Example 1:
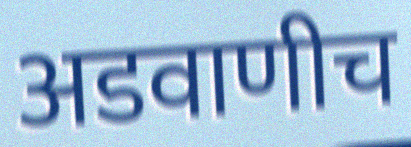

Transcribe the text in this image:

अडवाणीच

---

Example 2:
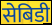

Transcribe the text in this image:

सेबिडी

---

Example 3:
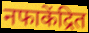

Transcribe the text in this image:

नफाकेंद्रित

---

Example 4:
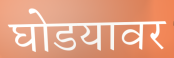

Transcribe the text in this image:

घोडयावर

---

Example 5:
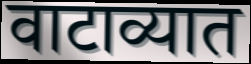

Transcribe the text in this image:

वाटाव्यात